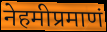
नेहमीप्रमाणं